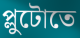
প্লুটোতে